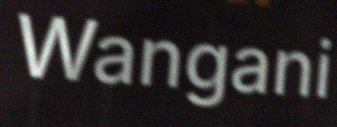
Wangani